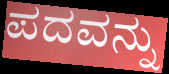
ಪದವನ್ನು